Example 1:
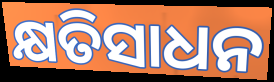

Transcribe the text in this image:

କ୍ଷତିସାଧନ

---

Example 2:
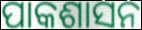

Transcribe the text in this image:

ପାକଶାସନ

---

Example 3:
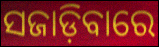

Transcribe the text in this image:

ସଜାଡ଼ିବାରେ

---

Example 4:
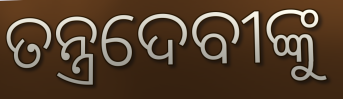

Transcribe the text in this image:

ତନ୍ତ୍ରଦେବୀଙ୍କୁ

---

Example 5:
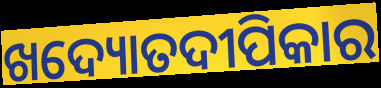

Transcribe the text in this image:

ଖଦ୍ୟୋତଦୀପିକାର